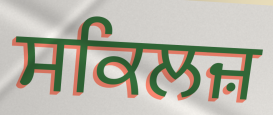
ਸਕਿਲਜ਼